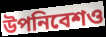
উপনিবেশও